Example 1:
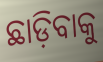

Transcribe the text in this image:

ଛାଡ଼ିବାକୁ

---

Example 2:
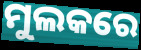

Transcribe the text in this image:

ମୁଲକରେ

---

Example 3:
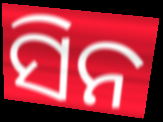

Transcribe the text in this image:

ସିନ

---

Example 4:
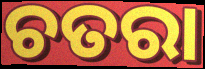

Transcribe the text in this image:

ଚତରା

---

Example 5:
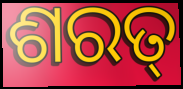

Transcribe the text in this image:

ଶରତ୍